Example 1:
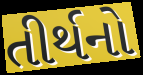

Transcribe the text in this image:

તીર્થનો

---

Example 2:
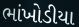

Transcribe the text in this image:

ભાંખોડીયા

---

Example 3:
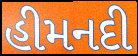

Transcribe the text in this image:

હીમનદી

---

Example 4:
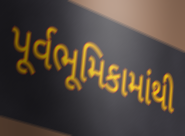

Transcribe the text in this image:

પૂર્વભૂમિકામાંથી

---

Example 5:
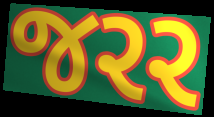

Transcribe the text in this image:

જરર